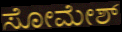
ಸೋಮೇಶ್